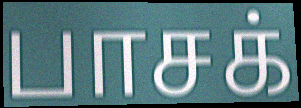
பாசக்